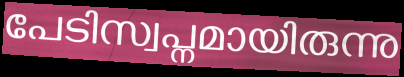
പേടിസ്വപ്നമായിരുന്നു